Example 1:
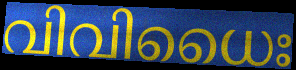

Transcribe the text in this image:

വിവിധൈഃ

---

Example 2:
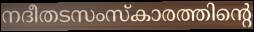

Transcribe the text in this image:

നദീതടസംസ്കാരത്തിന്റെ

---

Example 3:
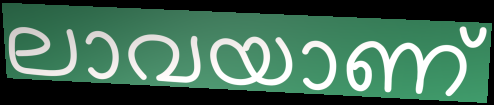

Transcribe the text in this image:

ലാവയാണ്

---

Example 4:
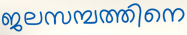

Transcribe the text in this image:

ജലസമ്പത്തിനെ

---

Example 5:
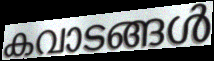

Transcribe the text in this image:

കവാടങ്ങൾ